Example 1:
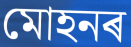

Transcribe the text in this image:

মোহনৰ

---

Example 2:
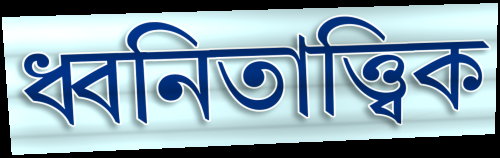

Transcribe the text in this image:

ধ্বনিতাত্ত্বিক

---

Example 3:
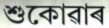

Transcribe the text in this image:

শুকোৱাৰ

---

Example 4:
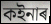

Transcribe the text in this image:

কইনাৰ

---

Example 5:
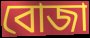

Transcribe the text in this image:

বোজা